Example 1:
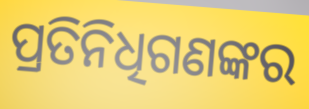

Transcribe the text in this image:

ପ୍ରତିନିଧିଗଣଙ୍କର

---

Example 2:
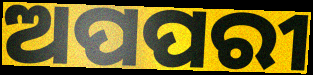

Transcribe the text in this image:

ଅପପରୀ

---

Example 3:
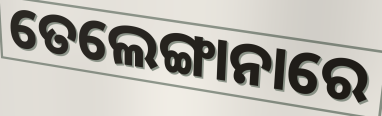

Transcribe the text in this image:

ତେଲେଙ୍ଗାନାରେ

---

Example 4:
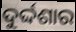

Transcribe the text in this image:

ଦୁର୍ଦ୍ଦଶାର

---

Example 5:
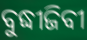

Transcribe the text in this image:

ବୁଦ୍ଧୀଜିବୀ